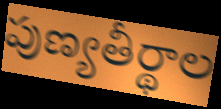
పుణ్యతీర్థాల